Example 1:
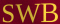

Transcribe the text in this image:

SWB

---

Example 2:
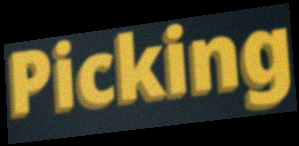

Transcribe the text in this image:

Picking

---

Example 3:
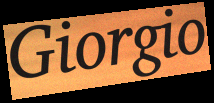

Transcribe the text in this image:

Giorgio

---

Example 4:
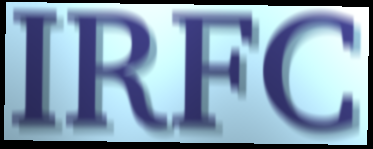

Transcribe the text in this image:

IRFC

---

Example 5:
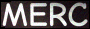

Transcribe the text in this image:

MERC